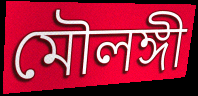
মৌলঙ্গী